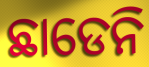
ଛାଡେନି